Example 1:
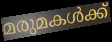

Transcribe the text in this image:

മരുമകൾക്ക്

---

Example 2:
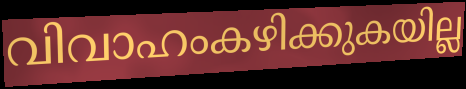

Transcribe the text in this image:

വിവാഹംകഴിക്കുകയില്ല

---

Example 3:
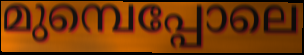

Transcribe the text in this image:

മുമ്പെപ്പോലെ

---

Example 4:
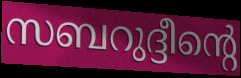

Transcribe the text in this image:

സബറുദ്ദീന്റെ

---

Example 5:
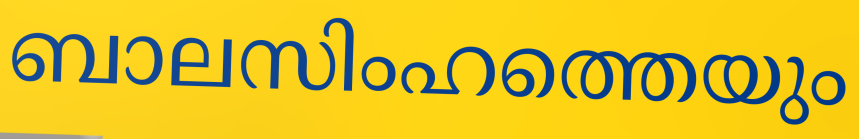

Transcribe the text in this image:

ബാലസിംഹത്തെയും